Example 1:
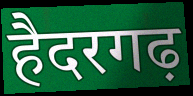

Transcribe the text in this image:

हैदरगढ़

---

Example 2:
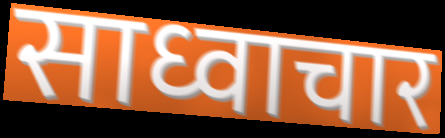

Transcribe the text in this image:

साध्वाचार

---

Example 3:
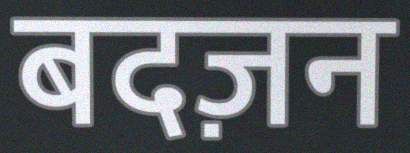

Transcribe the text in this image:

बदज़न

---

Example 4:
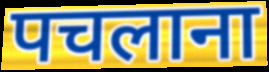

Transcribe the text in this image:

पचलाना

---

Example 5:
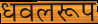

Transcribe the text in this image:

धवलरूप